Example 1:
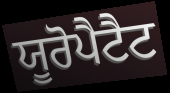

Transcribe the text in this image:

ਯੂਰੋਪੈਟੈਟ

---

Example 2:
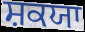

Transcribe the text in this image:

ਸ਼ਕਯਾ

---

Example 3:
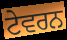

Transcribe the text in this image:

ਟੇਵਰਨ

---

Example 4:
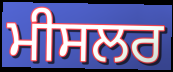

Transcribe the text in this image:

ਮੀਸਲਰ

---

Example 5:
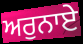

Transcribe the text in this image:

ਅਰੁਨਾਏ